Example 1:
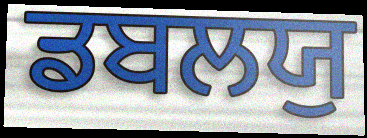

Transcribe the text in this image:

ਡਬਲਯੁ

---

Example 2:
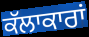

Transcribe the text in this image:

ਕੱਲਾਕਾਰਾਂ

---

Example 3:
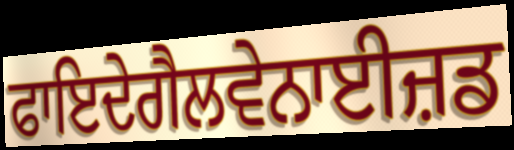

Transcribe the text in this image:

ਫਾਇਦੇਗੈਲਵੇਨਾਈਜ਼ਡ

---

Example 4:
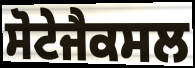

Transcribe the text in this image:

ਸੋਟੇਜੈਕਸਲ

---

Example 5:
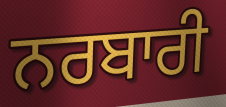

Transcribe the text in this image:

ਨਰਬਾਰੀ